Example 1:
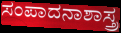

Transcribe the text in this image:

ಸಂಪಾದನಾಶಾಸ್ತ್ರ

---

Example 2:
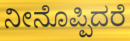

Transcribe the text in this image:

ನೀನೊಪ್ಪಿದರೆ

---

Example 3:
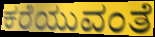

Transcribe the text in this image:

ಕರೆಯುವಂತೆ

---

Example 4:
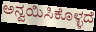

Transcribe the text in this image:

ಅನ್ವಯಿಸಿಕೊಳ್ಳದೆ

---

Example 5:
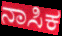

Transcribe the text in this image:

ನಾಸಿಕ